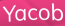
Yacob